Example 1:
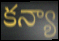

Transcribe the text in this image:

కన్యా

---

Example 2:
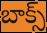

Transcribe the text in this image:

బాక్స్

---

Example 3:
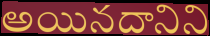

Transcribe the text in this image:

అయినదానిని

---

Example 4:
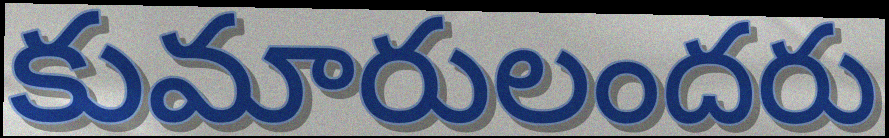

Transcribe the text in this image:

కుమారులందరు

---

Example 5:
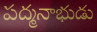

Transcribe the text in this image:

పద్మనాభుడు